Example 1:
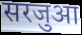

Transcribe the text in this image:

सरजुआ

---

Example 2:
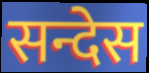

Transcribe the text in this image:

सन्देस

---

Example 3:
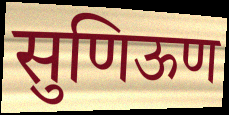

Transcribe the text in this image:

सुणिऊण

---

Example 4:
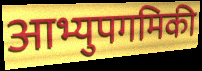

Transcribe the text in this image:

आभ्युपगमिकी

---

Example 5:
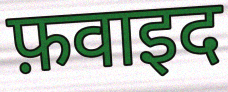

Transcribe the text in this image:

फ़वाइद